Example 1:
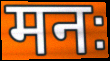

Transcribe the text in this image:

मनः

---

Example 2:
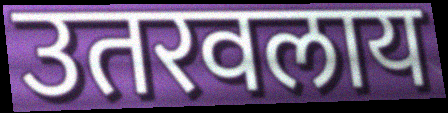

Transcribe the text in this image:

उतरवलाय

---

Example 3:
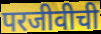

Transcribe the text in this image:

परजीवीची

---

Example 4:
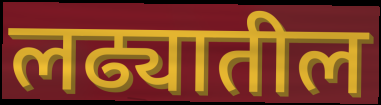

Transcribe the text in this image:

लढ्यातील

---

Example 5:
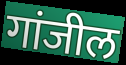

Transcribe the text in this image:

गांजील